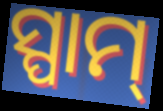
ସ୍ପାମ୍